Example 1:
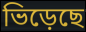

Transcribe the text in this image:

ভিড়েছে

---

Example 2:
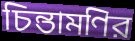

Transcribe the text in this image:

চিন্তামণির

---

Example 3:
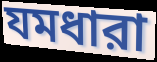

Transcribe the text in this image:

যমধারা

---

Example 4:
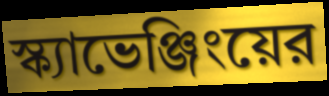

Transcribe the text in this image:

স্ক্যাভেঞ্জিংয়ের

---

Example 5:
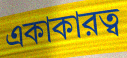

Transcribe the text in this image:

একাকারত্ব